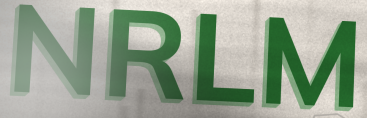
NRLM